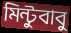
মিন্টুবাবু